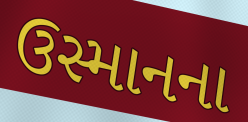
ઉસ્માનના